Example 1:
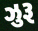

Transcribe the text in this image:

ઝુરૂ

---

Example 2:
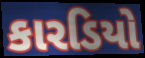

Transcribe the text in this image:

કારડિયો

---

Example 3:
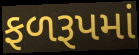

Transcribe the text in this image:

ફળરૂપમાં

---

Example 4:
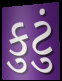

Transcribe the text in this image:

કુટું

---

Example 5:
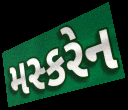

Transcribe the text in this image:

મસ્કરેન